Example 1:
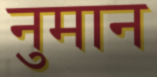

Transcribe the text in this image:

नुमान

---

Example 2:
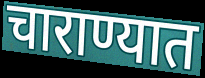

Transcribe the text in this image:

चाराण्यात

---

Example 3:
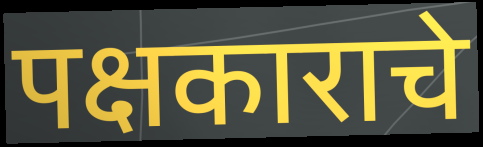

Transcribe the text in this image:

पक्षकाराचे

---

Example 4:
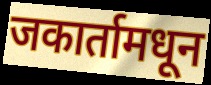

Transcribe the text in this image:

जकार्तामधून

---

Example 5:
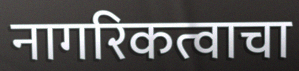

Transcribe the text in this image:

नागरिकत्वाचा